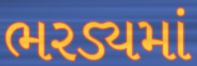
ભરડ્યમાં